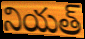
నియత్